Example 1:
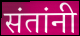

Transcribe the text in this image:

संतांनी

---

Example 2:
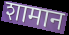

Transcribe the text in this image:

शामान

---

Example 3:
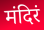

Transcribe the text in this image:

मंदिरं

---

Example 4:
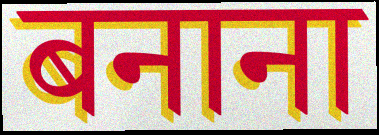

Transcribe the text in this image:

बनाना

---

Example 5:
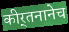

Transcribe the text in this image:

कीर्तनानेच